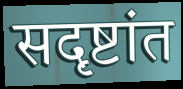
सदृष्टांत